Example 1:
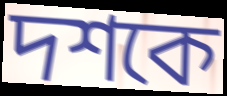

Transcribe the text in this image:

দশকে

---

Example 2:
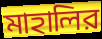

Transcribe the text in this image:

মাহালির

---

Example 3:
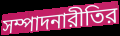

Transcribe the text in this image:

সম্পাদনারীতির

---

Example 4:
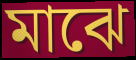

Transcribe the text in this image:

মাঝে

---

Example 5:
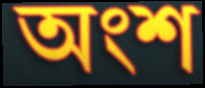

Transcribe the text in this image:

অংশ